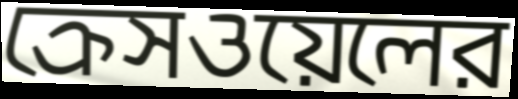
ক্রেসওয়েলের